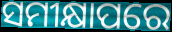
ସମୀକ୍ଷାପରେ